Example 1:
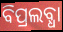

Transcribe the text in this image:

ବିପ୍ରଲବ୍ଧା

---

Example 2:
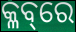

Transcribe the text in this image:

କ୍ଳବ୍‌ରେ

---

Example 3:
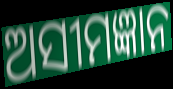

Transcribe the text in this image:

ଅସୀମଜ୍ଞାନ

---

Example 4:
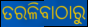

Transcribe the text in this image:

ତରଳିବାଠାରୁ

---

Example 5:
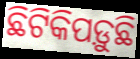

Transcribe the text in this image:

ଛିଟିକିପଡ଼ୁଛି